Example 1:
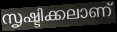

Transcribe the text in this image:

സൃഷ്ടിക്കലാണ്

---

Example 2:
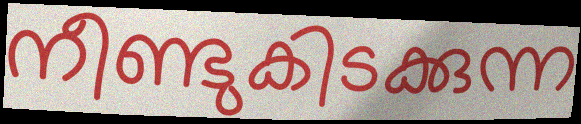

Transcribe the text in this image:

നീണ്ടുകിടക്കുന്ന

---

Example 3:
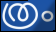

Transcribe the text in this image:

ത്രം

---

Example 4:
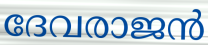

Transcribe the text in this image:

ദേവരാജൻ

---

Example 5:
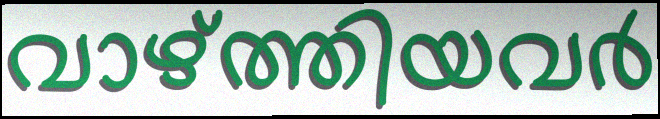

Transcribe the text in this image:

വാഴ്ത്തിയവർ